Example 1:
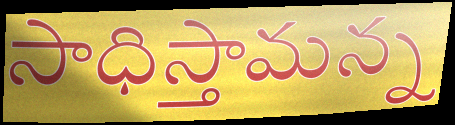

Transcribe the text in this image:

సాధిస్తామన్న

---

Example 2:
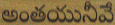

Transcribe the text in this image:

అంతయునీవే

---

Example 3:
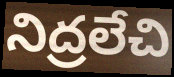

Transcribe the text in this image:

నిద్రలేచి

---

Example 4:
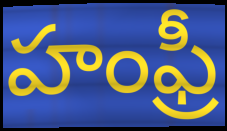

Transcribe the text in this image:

హంఫ్రీ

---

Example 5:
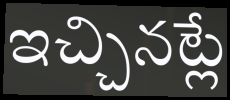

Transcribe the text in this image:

ఇచ్చినట్లే